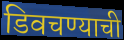
डिवचण्याची